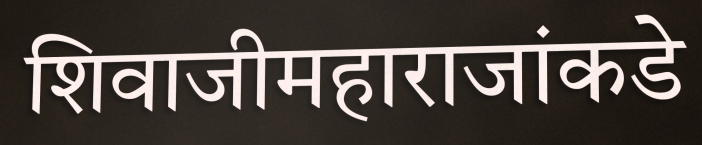
शिवाजीमहाराजांकडे